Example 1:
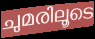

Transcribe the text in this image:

ചുമരിലൂടെ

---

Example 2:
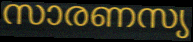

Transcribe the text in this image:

സാരണസ്യ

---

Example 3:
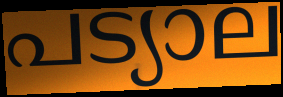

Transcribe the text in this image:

പട്യാല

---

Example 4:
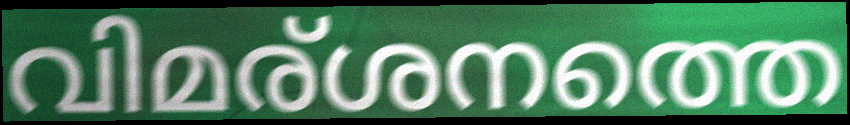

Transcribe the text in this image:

വിമര്ശനത്തെ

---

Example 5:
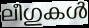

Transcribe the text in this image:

ലീഗുകൾ